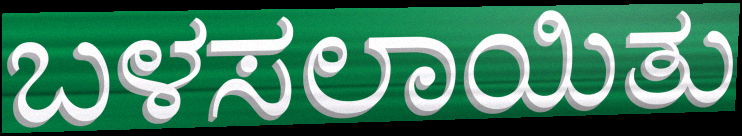
ಬಳಸಲಾಯಿತು